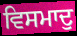
ਵਿਸਮਾਦੁ